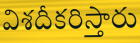
విశదీకరిస్తారు